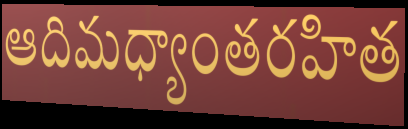
ఆదిమధ్యాంతరహిత